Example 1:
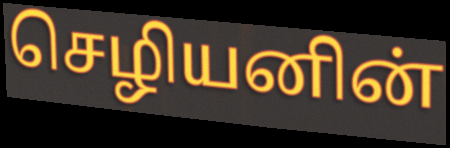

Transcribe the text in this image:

செழியனின்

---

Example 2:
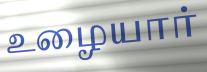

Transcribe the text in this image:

உழையார்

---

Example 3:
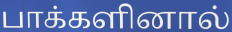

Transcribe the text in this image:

பாக்களினால்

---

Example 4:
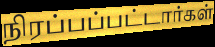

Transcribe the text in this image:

நிரப்பப்பட்டார்கள்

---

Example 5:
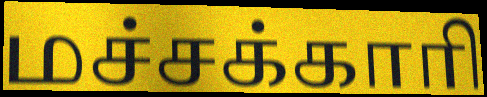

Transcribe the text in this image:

மச்சக்காரி